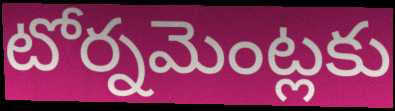
టోర్నమెంట్లకు